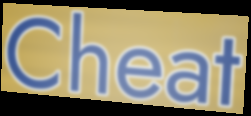
Cheat